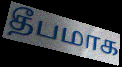
தீபமாக